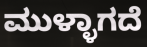
ಮುಳ್ಳಾಗದೆ